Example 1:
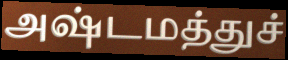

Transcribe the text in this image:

அஷ்டமத்துச்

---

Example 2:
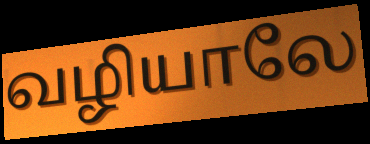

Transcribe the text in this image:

வழியாலே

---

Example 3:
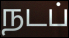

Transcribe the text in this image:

நடப்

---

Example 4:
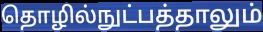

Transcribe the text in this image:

தொழில்நுட்பத்தாலும்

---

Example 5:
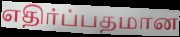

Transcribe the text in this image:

எதிர்ப்பதமான